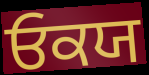
ਓਕਯ